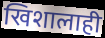
खिशालाही